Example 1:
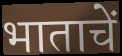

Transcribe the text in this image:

भाताचें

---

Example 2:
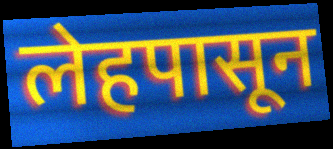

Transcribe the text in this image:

लेहपासून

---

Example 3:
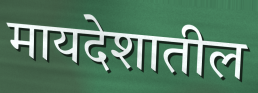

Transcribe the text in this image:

मायदेशातील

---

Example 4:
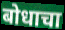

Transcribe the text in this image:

बोधाचा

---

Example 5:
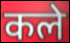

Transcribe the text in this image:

कले